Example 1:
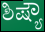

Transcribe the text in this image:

ಶಿಷ್ಯೌ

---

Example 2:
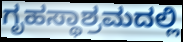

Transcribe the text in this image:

ಗೃಹಸ್ಥಾಶ್ರಮದಲ್ಲಿ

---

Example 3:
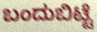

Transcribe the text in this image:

ಬಂದುಬಿಟ್ಟೆ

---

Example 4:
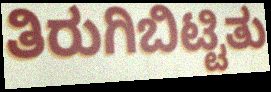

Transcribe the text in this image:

ತಿರುಗಿಬಿಟ್ಟಿತು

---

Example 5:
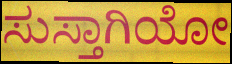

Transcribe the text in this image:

ಸುಸ್ತಾಗಿಯೋ